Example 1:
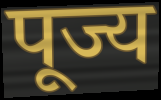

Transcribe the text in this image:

पूज्य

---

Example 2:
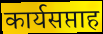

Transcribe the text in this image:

कार्यसप्ताह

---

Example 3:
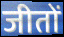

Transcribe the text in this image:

जीतों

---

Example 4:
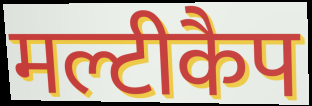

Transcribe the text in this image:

मल्‍टीकैप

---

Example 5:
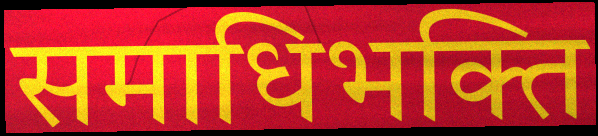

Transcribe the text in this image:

समाधिभक्ति